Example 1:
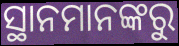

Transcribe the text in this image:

ସ୍ଥାନମାନଙ୍କରୁ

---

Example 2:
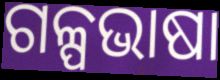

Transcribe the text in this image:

ଗଳ୍ପଭାଷା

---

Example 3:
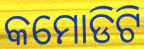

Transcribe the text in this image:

କମୋଡିଟି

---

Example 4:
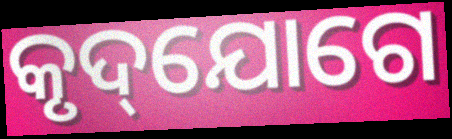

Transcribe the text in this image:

କୃଦ୍‌ଯୋଗେ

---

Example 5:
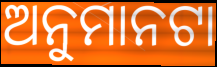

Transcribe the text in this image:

ଅନୁମାନଟା